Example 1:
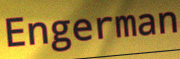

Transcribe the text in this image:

Engerman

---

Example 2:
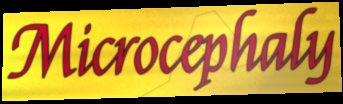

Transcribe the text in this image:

Microcephaly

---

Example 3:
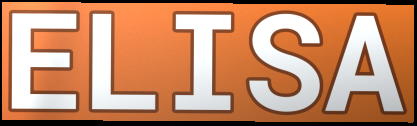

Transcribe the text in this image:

ELISA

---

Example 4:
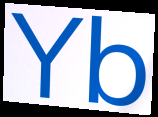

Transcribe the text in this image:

Yb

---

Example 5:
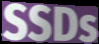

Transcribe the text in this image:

SSDs